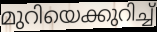
മുറിയെക്കുറിച്ച്